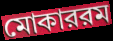
মোকাররম